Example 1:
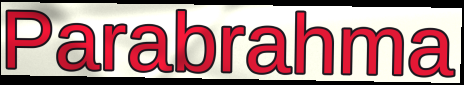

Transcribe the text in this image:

Parabrahma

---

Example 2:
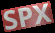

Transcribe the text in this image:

SPX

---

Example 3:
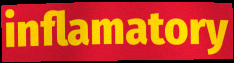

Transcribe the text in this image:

inflamatory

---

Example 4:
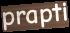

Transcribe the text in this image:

prapti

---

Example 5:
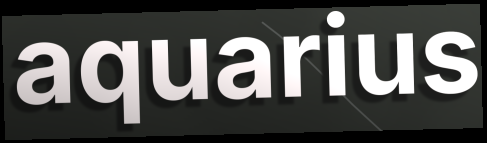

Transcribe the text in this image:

aquarius